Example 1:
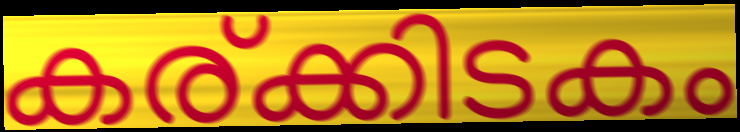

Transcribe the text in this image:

കര്ക്കിടകം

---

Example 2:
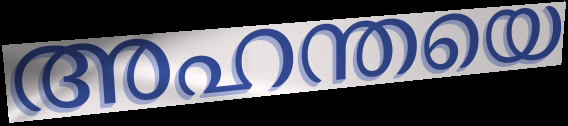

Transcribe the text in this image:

അഹന്തയെ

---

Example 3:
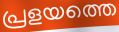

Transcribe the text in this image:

പ്രളയത്തെ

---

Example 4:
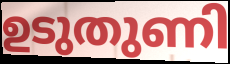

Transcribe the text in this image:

ഉടുതുണി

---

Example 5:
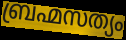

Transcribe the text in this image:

ബ്രഹ്മസത്യം